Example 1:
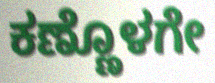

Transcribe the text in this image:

ಕಣ್ಣೊಳಗೇ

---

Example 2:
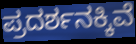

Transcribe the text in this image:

ಪ್ರದರ್ಶನಕ್ಕಿವೆ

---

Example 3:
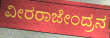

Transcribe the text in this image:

ವೀರರಾಜೇಂದ್ರನ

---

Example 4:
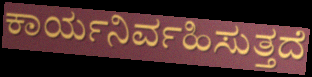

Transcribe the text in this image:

ಕಾರ್ಯನಿರ್ವಹಿಸುತ್ತದೆ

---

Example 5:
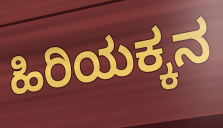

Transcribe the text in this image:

ಹಿರಿಯಕ್ಕನ